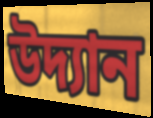
উদ্যান